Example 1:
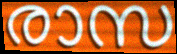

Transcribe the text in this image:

രാസ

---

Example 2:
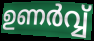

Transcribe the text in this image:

ഉണർവ്വ്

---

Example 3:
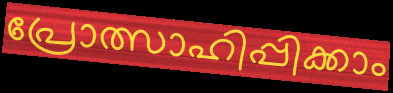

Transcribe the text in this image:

പ്രോത്സാഹിപ്പിക്കാം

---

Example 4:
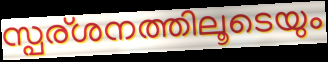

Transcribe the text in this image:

സ്പര്ശനത്തിലൂടെയും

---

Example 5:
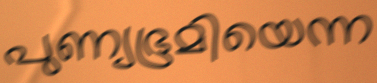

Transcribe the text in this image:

പുണ്യഭൂമിയെന്ന